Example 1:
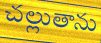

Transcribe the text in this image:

చల్లుతాను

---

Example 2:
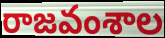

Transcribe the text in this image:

రాజవంశాల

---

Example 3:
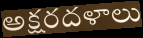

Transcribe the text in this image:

అక్షరదళాలు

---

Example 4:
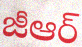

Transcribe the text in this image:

జీఆర్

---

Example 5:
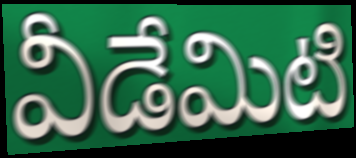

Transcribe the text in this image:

వీడేమిటి